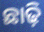
ଛାଢ଼ି